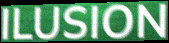
ILUSION